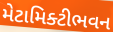
મેટામિક્ટીભવન